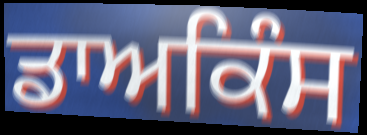
ਡਾਅਕਿੰਸ